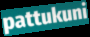
pattukuni